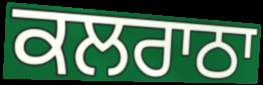
ਕਲਰਾਠਾ